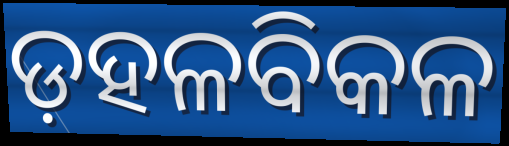
ଡ଼ହଳବିକଳ